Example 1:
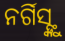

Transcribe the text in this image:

ନର୍ଗିସ୍ଙ୍କୁ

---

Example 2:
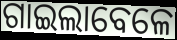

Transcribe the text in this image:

ଗାଇଲାବେଳେ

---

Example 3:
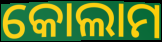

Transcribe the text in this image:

କୋଲାମ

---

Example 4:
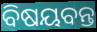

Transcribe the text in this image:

ବିଷୟବନ୍ତ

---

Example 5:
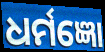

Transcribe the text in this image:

ଧର୍ମଜ୍ଞୋ